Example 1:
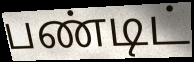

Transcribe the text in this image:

பண்டிட்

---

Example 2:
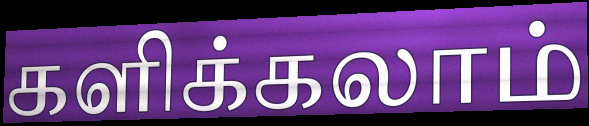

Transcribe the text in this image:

களிக்கலாம்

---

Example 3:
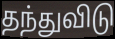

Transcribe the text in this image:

தந்துவிடு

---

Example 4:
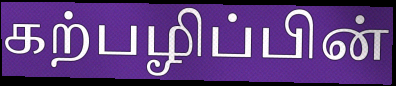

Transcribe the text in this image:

கற்பழிப்பின்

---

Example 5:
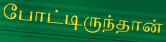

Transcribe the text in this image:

போட்டிருந்தான்